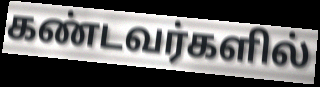
கண்டவர்களில்